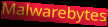
Malwarebytes